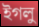
ইগলু